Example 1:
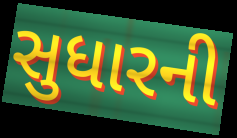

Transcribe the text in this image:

સુધારની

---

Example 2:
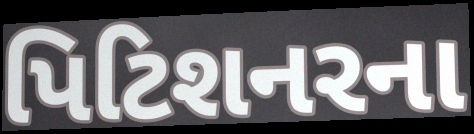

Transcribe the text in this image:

પિટિશનરના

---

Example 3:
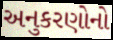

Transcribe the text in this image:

અનુકરણોનો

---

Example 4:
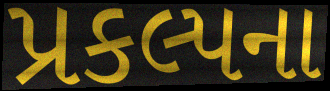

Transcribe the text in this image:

પ્રકલ્પના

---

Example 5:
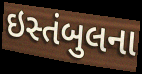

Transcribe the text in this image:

ઇસ્તંબુલના